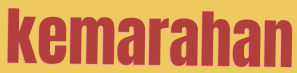
kemarahan